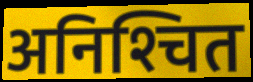
अनिश्चित